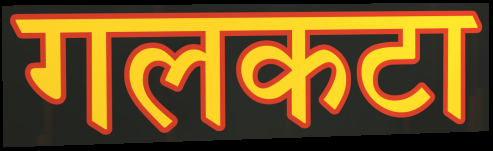
गलकटा